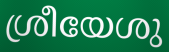
ശ്രീയേശു